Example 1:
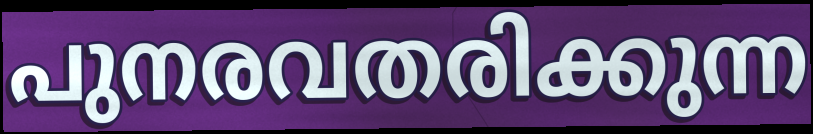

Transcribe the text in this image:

പുനരവതരിക്കുന്ന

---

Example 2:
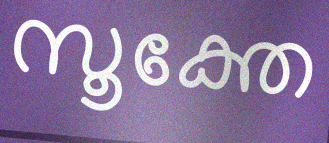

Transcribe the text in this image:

സൂക്തേ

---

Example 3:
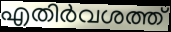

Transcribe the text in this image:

എതിർവശത്ത്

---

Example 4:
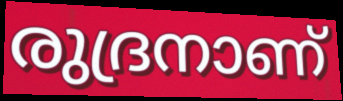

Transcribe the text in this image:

രുദ്രനാണ്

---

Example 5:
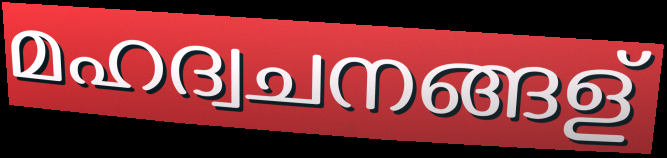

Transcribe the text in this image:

മഹദ്വചനങ്ങള്